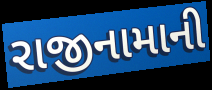
રાજીનામાની